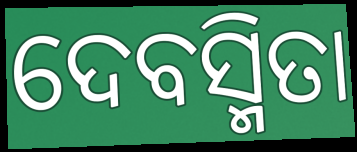
ଦେବସ୍ମିତା